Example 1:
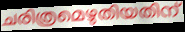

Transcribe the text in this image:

ചരിത്രമെഴുതിയതിന്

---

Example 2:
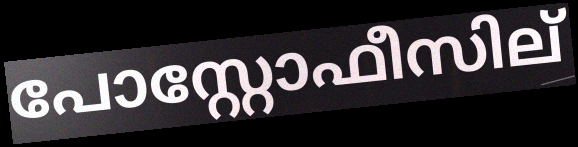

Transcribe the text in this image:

പോസ്റ്റോഫീസില്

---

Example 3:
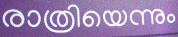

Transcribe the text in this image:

രാത്രിയെന്നും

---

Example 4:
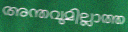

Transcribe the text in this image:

അന്തവുമില്ലാത്ത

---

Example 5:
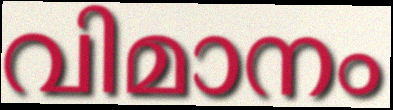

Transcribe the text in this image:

വിമാനം